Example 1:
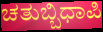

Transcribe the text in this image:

ಚತುಬ್ಬಿಧಾಪಿ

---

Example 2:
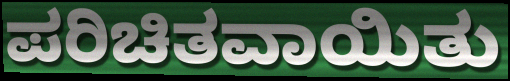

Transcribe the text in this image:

ಪರಿಚಿತವಾಯಿತು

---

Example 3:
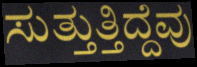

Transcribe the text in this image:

ಸುತ್ತುತ್ತಿದ್ದೆವು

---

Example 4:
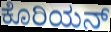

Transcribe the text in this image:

ಕೊರಿಯನ್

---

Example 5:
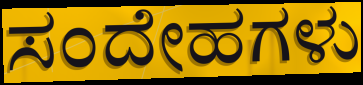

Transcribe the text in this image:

ಸಂದೇಹಗಳು